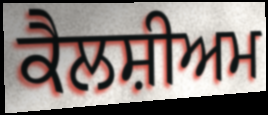
ਕੈਲਸ਼ੀਅਮ